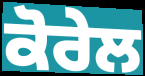
ਕੋਰੇਲ